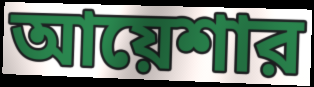
আয়েশার